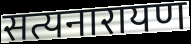
सत्यनारायण